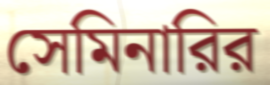
সেমিনারির